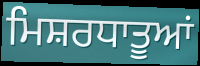
ਮਿਸ਼ਰਧਾਤੂਆਂ